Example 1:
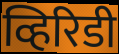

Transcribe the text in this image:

व्हिरिडी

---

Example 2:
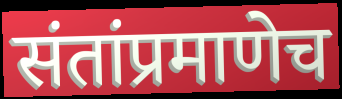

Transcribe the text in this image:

संतांप्रमाणेच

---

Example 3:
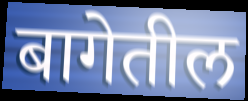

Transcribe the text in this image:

बागेतील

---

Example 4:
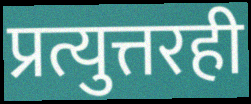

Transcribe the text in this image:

प्रत्युत्तरही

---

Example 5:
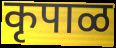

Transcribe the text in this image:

कृपाळ